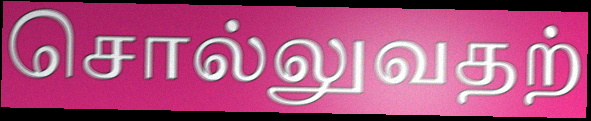
சொல்லுவதற்